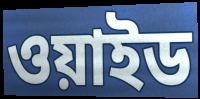
ওয়াইড